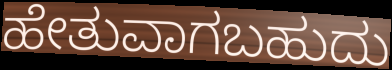
ಹೇತುವಾಗಬಹುದು